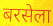
बरसेला